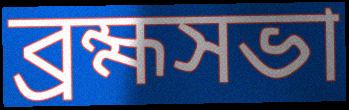
ব্রহ্মসভা